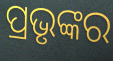
ପ୍ରଭୃଙ୍କର